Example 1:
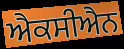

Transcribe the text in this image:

ਐਕਸੀਐਨ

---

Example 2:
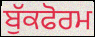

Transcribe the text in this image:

ਬੁੱਕਫੋਰਮ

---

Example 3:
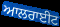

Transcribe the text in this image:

ਆਲਰਾਈਟ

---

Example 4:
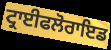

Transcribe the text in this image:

ਟ੍ਰਾਈਫਲੋਰਾਇਡ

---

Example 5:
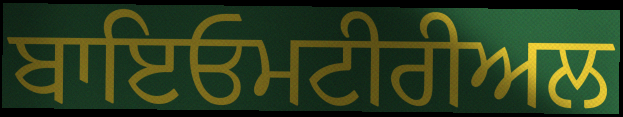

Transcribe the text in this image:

ਬਾਇਓਮਟੀਰੀਅਲ